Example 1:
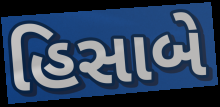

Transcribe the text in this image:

હિસાબે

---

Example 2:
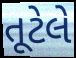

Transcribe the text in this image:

તૂટેલે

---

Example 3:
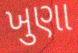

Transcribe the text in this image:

ખુણા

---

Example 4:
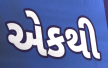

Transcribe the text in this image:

એકથી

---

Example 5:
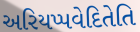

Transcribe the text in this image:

અરિયપ્પવેદિતેતિ